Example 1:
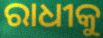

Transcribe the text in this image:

ରାଧୀକୁ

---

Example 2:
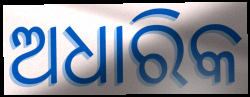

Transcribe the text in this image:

ଅଧାରିକ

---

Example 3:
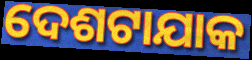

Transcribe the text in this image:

ଦେଶଟାଯାକ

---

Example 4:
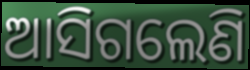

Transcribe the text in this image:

ଆସିଗଲେଣି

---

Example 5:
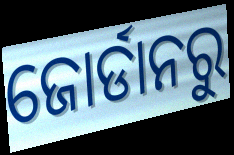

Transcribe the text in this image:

ଜୋର୍ଡାନରୁ